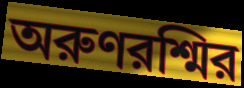
অরুণরশ্মির